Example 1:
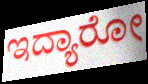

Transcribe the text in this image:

ಇದ್ಯಾರೋ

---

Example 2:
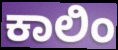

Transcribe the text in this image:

ಕಾಲಿಂ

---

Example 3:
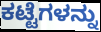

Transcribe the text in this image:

ಕಟ್ಟೆಗಳನ್ನು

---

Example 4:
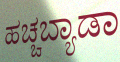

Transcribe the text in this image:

ಹಚ್ಚಬ್ಯಾಡಾ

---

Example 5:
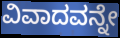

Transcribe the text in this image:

ವಿವಾದವನ್ನೇ